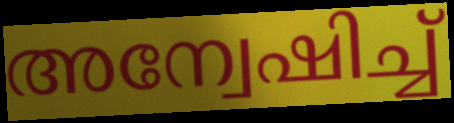
അന്വേഷിച്ച്